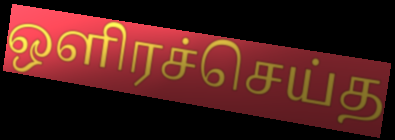
ஒளிரச்செய்த